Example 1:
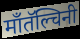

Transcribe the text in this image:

माँतॅल्चिनी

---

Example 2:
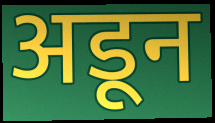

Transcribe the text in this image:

अडून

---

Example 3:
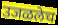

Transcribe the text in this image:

उजळलेच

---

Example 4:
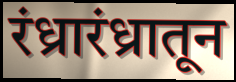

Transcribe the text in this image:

रंध्रारंध्रातून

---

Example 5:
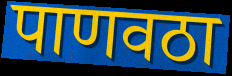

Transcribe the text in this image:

पाणवठा